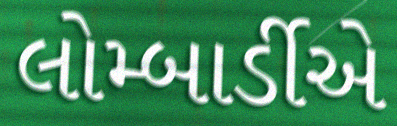
લોમ્બાર્ડીએ